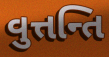
વુત્તન્તિ